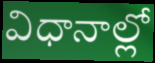
విధానాల్లో